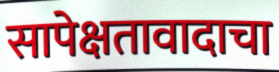
सापेक्षतावादाचा